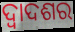
ଦ୍ୱାଦଶର